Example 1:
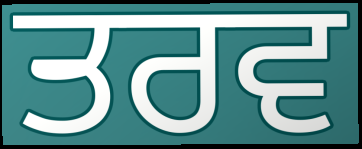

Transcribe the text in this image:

ਤਰਵ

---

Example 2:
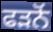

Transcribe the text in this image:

ਫੜਨੋਂ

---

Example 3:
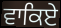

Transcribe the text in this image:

ਵਾਕਿਏ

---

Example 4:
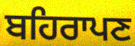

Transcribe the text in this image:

ਬਹਿਰਾਪਣ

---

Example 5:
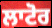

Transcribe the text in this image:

ਲਾਟੋਰ